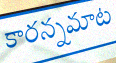
కారన్నమాట